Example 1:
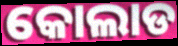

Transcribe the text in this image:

କୋଲାଡ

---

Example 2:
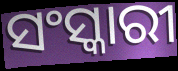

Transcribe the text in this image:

ସଂସ୍କାରୀ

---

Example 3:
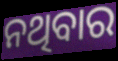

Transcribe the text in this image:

ନଥିବାର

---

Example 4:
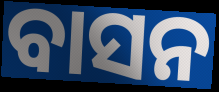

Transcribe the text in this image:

ବାସନ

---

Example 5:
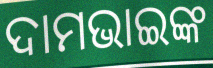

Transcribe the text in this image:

ଦାମଭାଇଙ୍କ